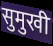
सुमुखी